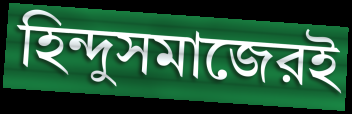
হিন্দুসমাজেরই